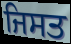
ਜਿਸਤ